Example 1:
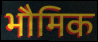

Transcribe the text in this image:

भौमिक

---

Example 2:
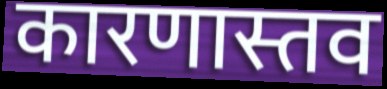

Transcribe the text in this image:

कारणास्तव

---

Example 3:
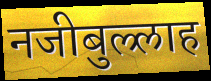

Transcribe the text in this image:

नजीबुल्लाह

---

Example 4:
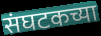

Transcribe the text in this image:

संघटकच्या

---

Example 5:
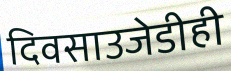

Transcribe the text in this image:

दिवसाउजेडीही